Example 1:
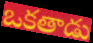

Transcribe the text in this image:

ఒకతాడు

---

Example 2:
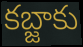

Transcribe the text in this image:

కబ్జాకు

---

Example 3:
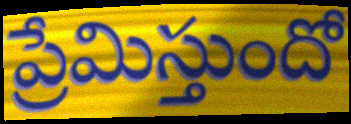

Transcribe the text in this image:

ప్రేమిస్తుందో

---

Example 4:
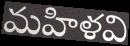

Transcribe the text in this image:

మహిళవి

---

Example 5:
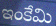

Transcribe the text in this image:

ఇంకేమి